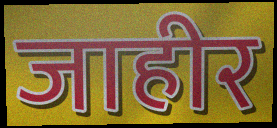
जाहीर